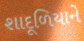
શાદૂળિયાને